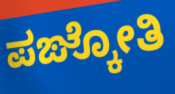
ಪಙ್ಕೋತಿ